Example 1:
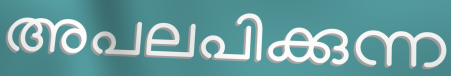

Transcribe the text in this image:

അപലപിക്കുന്ന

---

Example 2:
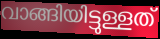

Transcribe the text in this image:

വാങ്ങിയിട്ടുള്ളത്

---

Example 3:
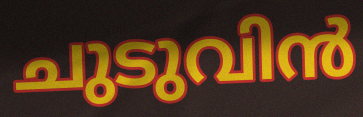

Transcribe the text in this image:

ചുടുവിൻ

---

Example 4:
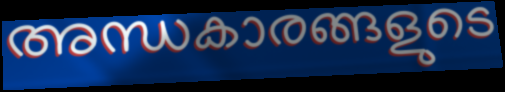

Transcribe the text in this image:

അന്ധകാരങ്ങളുടെ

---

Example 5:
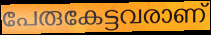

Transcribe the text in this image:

പേരുകേട്ടവരാണ്